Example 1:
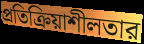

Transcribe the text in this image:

প্রতিক্রিয়াশীলতার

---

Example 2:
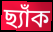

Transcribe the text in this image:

ছ্যাঁক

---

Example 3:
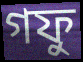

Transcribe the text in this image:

গফু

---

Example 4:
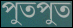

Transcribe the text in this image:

পুতপুত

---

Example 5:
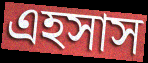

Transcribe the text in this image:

এহসাস